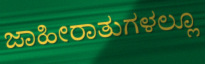
ಜಾಹೀರಾತುಗಳಲ್ಲೂ